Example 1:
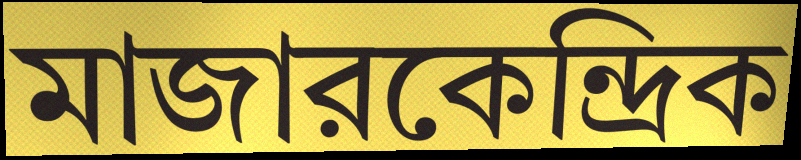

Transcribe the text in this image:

মাজারকেন্দ্রিক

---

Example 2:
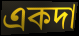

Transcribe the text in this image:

একদা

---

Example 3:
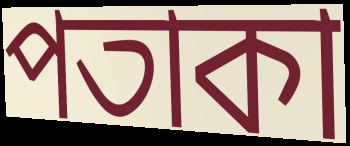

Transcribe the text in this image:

পতাকা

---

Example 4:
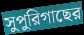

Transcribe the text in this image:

সুপুরিগাছের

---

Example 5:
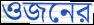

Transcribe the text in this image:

ওজনের